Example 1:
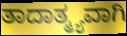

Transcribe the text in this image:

ತಾದಾತ್ಮ್ಯವಾಗಿ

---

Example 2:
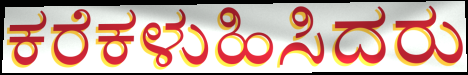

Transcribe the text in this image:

ಕರೆಕಳುಹಿಸಿದರು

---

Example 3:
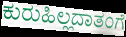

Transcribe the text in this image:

ಕುರುಹಿಲ್ಲದಾತಂಗೆ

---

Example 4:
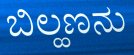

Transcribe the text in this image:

ಬಿಲ್ಹಣನು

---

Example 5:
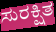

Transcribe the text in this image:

ಸುರಕ್ಷಿತ